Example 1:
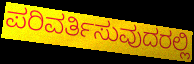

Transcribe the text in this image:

ಪರಿವರ್ತಿಸುವುದರಲ್ಲಿ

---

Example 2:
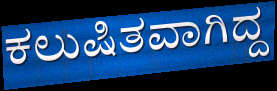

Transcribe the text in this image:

ಕಲುಷಿತವಾಗಿದ್ದ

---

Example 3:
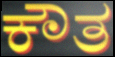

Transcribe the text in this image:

ಕೌತ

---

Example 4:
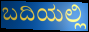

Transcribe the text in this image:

ಬದಿಯಲ್ಲಿ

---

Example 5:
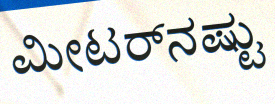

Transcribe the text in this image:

ಮೀಟರ್‌ನಷ್ಟು